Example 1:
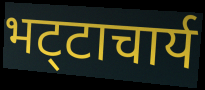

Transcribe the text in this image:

भट्‍टाचार्य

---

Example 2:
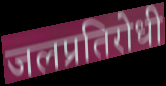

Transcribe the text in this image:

जलप्रतिरोधी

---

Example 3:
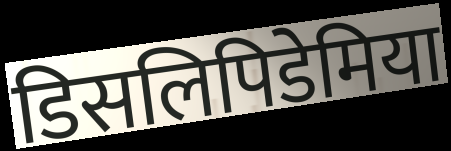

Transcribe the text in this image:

डिसलिपिडेमिया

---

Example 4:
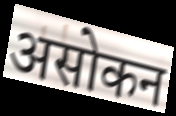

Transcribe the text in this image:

असोकन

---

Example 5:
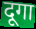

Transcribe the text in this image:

दूगा